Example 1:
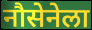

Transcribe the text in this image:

नौसेनेला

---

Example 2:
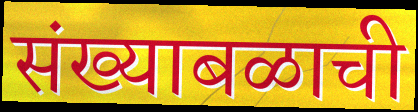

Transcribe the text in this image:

संख्याबळाची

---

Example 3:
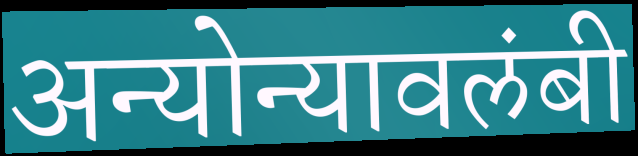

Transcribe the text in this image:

अन्योन्यावलंबी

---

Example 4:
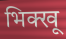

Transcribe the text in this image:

भिक्‍खू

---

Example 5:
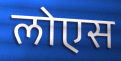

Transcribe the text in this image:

लोएस